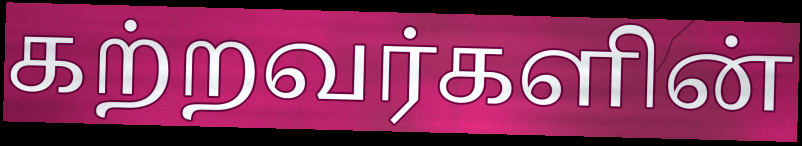
கற்றவர்களின்